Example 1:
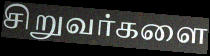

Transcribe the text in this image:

சிறுவர்களை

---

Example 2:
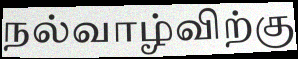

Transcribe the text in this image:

நல்வாழ்விற்கு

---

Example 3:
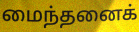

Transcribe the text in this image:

மைந்தனைக்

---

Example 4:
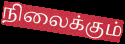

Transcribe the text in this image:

நிலைக்கும்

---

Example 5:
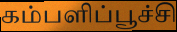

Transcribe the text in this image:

கம்பளிப்பூச்சி